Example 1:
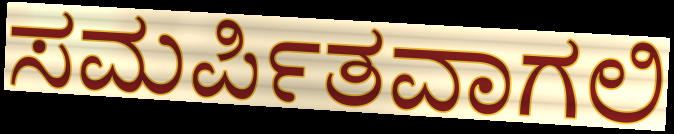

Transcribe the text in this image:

ಸಮರ್ಪಿತವಾಗಲಿ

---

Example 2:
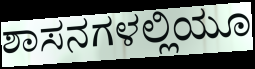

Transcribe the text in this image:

ಶಾಸನಗಳಲ್ಲಿಯೂ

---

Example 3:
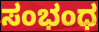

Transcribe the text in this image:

ಸಂಭಂಧ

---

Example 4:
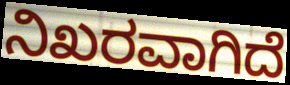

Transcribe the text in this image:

ನಿಖರವಾಗಿದೆ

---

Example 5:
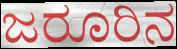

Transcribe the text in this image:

ಜರೂರಿನ